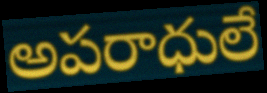
అపరాధులే